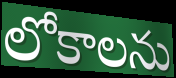
లోకాలను